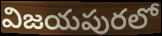
విజయపురలో